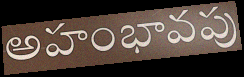
అహంభావపు